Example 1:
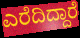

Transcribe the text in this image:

ಎರೆದಿದ್ದಾರೆ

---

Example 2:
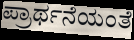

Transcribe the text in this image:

ಪ್ರಾರ್ಥನೆಯಂತೆ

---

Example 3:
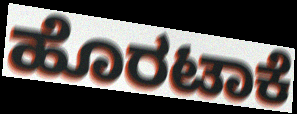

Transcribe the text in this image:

ಹೊರಟಾಕೆ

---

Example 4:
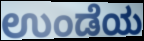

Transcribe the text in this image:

ಉಂಡೆಯ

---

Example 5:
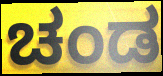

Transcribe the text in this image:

ಚಂಡ